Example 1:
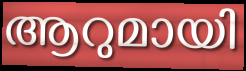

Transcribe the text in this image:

ആറുമായി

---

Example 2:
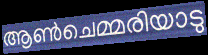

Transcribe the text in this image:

ആൺചെമ്മരിയാടു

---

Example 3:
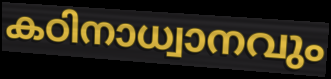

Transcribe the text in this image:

കഠിനാധ്വാനവും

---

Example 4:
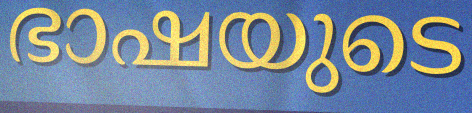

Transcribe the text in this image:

ഭാഷയുടെ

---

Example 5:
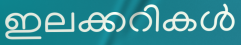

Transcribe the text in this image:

ഇലക്കറികൾ